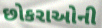
છોકરાઓની